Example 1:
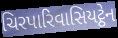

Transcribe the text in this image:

ચિરપારિવાસિયટ્ઠેન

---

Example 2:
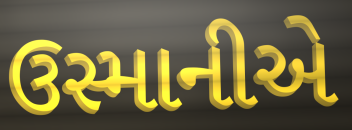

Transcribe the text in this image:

ઉસ્માનીએ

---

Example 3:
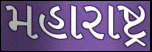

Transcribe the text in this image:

મહારાષ્ટ્ર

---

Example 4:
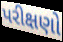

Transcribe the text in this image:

પરીક્ષણો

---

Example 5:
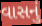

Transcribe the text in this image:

વાસનું